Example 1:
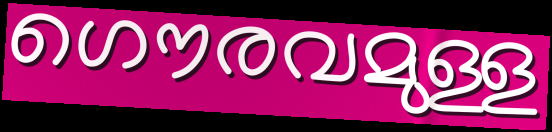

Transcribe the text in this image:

ഗൌരവമുള്ള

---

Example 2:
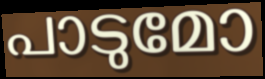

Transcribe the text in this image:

പാടുമോ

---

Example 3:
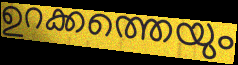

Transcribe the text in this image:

ഉറക്കത്തെയും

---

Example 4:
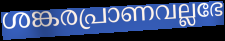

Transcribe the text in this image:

ശങ്കരപ്രാണവല്ലഭേ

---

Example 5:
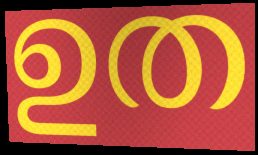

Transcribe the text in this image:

ഉത